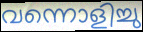
വന്നൊളിച്ചു